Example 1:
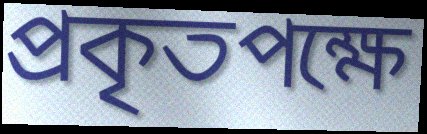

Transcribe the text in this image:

প্ৰকৃতপক্ষে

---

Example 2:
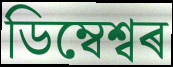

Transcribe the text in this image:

ডিম্বেশ্বৰ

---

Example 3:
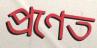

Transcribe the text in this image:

প্ৰণেত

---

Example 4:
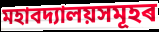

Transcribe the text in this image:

মহাবদ্যালয়সমূহৰ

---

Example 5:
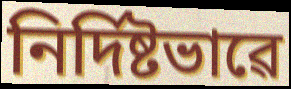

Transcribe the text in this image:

নিৰ্দিষ্টভাৱে